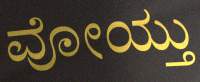
ವೋಯ್ತು